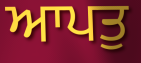
ਆਪਤੁ